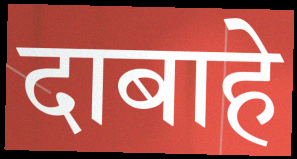
दाबाहे